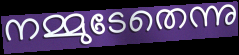
നമ്മുടേതെന്നു